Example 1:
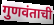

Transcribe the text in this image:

गुणवंताची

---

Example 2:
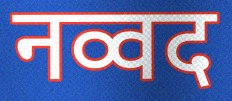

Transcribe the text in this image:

नव्वद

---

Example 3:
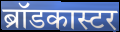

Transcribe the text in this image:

ब्रॉडकास्टर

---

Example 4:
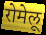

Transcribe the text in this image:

रोमेलू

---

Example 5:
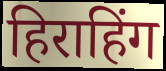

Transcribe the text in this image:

हिराहिंग